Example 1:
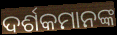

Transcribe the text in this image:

ଦର୍ଶକମାନଙ୍କ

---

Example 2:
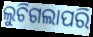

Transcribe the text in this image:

ଲୁଚିଗଲାପରି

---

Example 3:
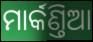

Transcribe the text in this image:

ମାର୍କଣ୍ତିଆ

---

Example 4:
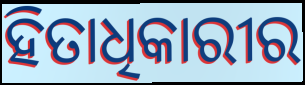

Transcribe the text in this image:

ହିତାଧିକାରୀର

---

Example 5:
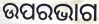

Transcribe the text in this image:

ଉପରଭାଗ